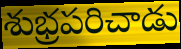
శుభ్రపరిచాడు